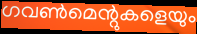
ഗവൺമെന്റുകളെയും